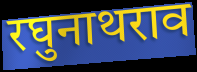
रघुनाथराव